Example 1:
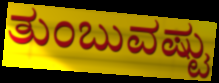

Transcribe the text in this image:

ತುಂಬುವಷ್ಟು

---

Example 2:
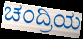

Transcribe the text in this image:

ಚಂದ್ರಿಯ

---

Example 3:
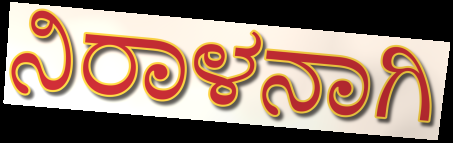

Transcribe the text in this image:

ನಿರಾಳನಾಗಿ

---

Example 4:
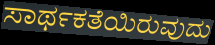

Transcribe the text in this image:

ಸಾರ್ಥಕತೆಯಿರುವುದು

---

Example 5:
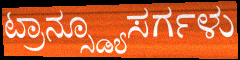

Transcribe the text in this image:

ಟ್ರಾನ್ಸ್ಡ್ಯೂಸರ್ಗಳು